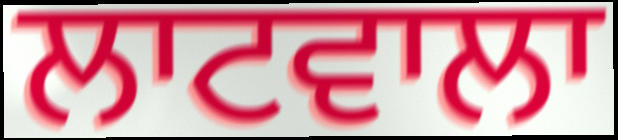
ਲਾਟਵਾਲਾ